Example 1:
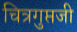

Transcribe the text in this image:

चित्रगुप्तजी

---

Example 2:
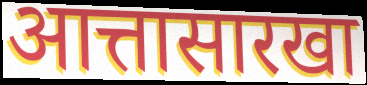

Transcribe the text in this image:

आत्तासारखा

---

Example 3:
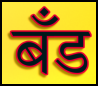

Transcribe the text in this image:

बॅंड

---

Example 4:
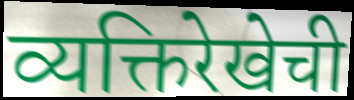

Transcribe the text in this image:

व्यक्तिरेखेची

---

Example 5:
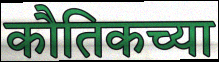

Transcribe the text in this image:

कौतिकच्या